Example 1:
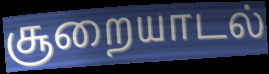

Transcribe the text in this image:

சூறையாடல்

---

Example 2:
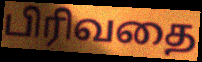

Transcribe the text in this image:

பிரிவதை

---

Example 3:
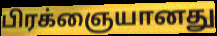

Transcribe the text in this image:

பிரக்ஞையானது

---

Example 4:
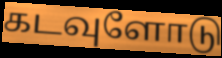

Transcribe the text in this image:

கடவுளோடு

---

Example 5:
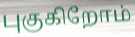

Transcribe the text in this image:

புகுகிறோம்